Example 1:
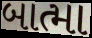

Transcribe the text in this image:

બાત્મા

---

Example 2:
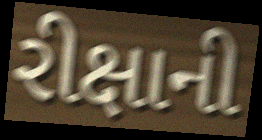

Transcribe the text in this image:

રીક્ષાની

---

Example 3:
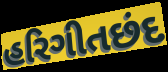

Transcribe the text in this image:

હરિગીતછંદ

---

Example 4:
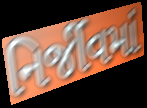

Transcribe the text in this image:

નિર્જીવમાં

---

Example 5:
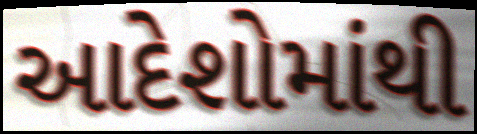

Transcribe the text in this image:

આદેશોમાંથી